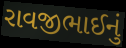
રાવજીભાઈનું